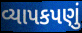
વ્યાપકપણું